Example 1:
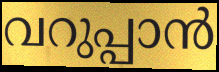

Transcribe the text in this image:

വറുപ്പാൻ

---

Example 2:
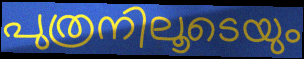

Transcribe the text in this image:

പുത്രനിലൂടെയും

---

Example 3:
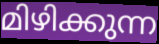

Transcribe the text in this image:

മിഴിക്കുന്ന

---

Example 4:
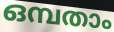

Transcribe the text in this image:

ഒമ്പതാം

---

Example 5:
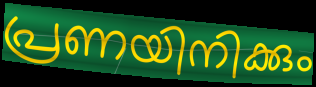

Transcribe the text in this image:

പ്രണയിനിക്കും